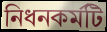
নিধনকর্মটি